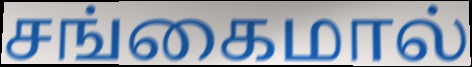
சங்கைமால்